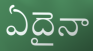
ఏదైనా